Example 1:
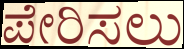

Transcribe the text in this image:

ಪೇರಿಸಲು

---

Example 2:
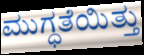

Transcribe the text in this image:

ಮುಗ್ಧತೆಯಿತ್ತು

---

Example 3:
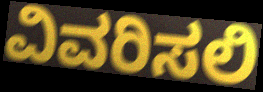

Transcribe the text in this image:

ವಿವರಿಸಲಿ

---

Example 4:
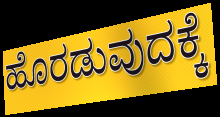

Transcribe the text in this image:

ಹೊರಡುವುದಕ್ಕೆ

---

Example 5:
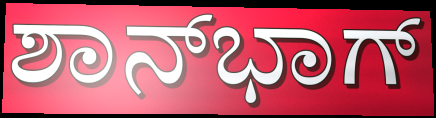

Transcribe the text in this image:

ಶಾನ್‍ಭಾಗ್